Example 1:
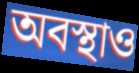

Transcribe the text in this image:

অবস্থাও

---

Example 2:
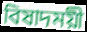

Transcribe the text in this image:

বিষাদময়ী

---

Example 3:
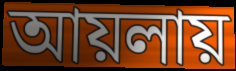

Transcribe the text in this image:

আয়লায়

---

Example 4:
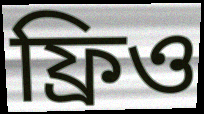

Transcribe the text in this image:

ফ্রিও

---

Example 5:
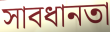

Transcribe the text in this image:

সাবধানতা